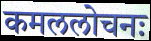
कमललोचनः